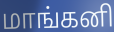
மாங்கனி